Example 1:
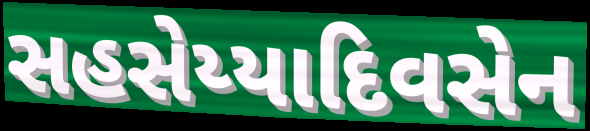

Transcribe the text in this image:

સહસેય્યાદિવસેન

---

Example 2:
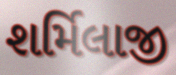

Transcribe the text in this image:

શર્મિલાજી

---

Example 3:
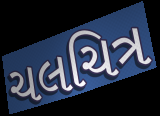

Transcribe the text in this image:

ચલચિત્ર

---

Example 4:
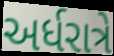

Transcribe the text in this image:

અર્ધરાત્રે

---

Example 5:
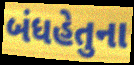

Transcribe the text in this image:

બંધહેતુના